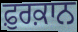
ਫ਼ੁਰਕ਼ਾਨ